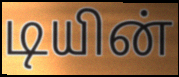
டியின்